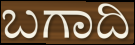
ಬಗಾದಿ